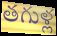
తగుళ్ల